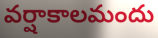
వర్షాకాలమందు